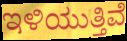
ಇಳಿಯುತ್ತಿವೆ